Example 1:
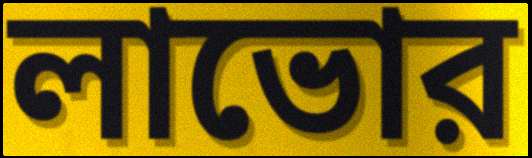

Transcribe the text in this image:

লাভোর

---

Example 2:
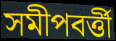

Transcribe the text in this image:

সমীপবর্ত্তী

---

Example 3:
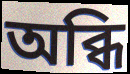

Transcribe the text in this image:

অব্ধি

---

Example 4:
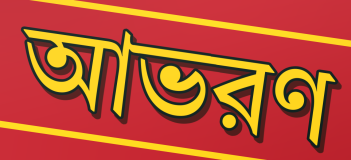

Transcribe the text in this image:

আভরণ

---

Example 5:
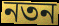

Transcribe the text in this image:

নতন